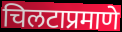
चिलटाप्रमाणे